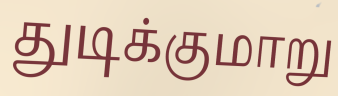
துடிக்குமாறு